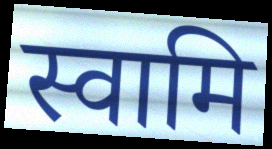
स्वामि